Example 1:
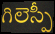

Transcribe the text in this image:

గిలెస్పీ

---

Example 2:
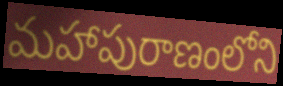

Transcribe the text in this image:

మహాపురాణంలోని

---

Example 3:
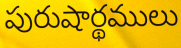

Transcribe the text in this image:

పురుషార్థములు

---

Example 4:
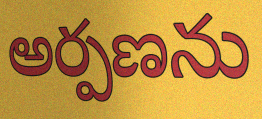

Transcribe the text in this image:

అర్పణను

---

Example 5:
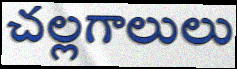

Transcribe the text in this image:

చల్లగాలులు